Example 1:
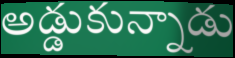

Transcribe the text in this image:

అడ్డుకున్నాడు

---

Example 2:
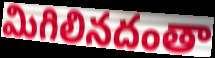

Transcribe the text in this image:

మిగిలినదంతా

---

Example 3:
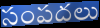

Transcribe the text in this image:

సంపదలు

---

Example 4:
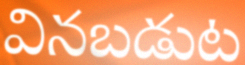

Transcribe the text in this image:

వినబడుట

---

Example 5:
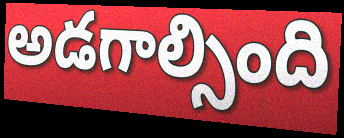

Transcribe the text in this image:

అడగాల్సింది